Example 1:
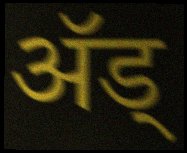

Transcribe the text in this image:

ॲड्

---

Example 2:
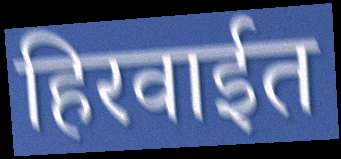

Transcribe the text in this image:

हिरवाईत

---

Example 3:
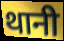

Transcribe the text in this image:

थानी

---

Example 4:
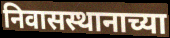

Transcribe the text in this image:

निवासस्थानाच्या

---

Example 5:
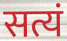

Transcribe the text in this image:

सत्यं